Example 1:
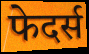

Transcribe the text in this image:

फेदर्स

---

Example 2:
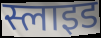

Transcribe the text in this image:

स्लाइड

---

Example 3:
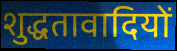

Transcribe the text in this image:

शुद्धतावादियों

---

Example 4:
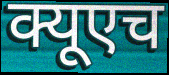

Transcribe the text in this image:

क्यूएच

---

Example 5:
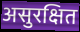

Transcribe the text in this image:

असुरक्षित